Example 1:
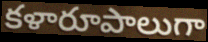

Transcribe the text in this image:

కళారూపాలుగా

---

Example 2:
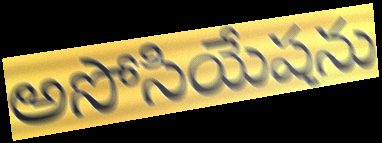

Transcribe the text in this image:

అసోసియేషను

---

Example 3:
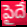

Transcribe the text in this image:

పైదే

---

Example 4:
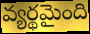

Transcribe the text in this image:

వ్యర్థమైంది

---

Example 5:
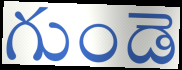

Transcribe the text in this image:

గుండె